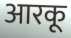
आरकू